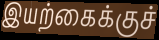
இயற்கைக்குச்